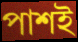
পাশই